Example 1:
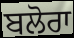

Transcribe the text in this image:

ਬਲੋਰਾ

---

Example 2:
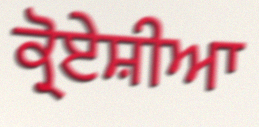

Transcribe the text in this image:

ਕ੍ਰੋਏਸ਼ੀਆ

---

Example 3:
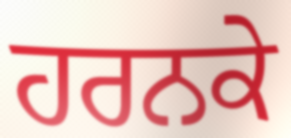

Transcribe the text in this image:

ਹਰਨਕੇ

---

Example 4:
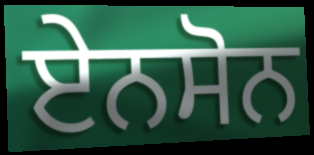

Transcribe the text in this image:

ਏਨਸੋਨ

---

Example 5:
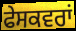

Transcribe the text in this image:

ਫੇਸਕਵਰਾਂ